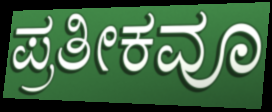
ಪ್ರತೀಕವೂ